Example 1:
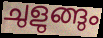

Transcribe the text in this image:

ചുളുങ്ങും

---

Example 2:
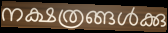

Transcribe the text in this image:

നക്ഷത്രങ്ങൾക്കു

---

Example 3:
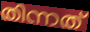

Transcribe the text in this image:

തിന്നത്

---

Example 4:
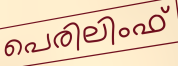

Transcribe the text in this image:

പെരിലിംഫ്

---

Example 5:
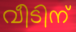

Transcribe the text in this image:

വീടിന്